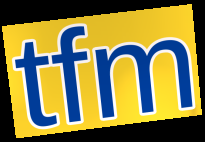
tfm